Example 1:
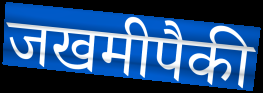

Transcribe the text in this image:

जखमीपैकी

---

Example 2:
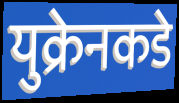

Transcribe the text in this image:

युक्रेनकडे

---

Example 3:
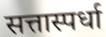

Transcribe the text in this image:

सत्तास्पर्धा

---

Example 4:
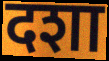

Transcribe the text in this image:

दशा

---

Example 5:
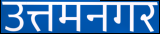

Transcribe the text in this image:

उत्तमनगर